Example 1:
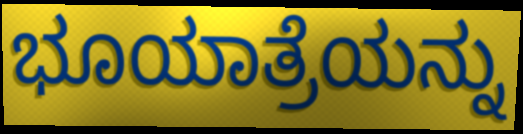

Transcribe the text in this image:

ಭೂಯಾತ್ರೆಯನ್ನು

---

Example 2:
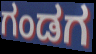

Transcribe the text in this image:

ಗಂಡಗ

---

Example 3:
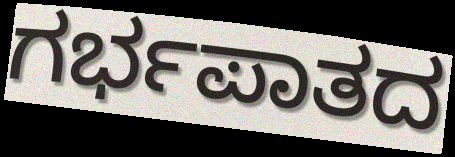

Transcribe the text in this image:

ಗರ್ಭಪಾತದ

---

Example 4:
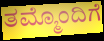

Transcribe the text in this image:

ತಮ್ಮೊಂದಿಗೆ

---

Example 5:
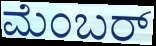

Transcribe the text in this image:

ಮೆಂಬರ್